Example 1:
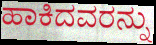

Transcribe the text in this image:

ಹಾಕಿದವರನ್ನು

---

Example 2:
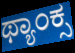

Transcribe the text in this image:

ಥ್ಯಾಂಕ್ಸ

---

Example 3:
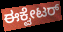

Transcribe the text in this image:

ಈಕ್ವೇಟರ್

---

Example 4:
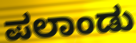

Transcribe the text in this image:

ಪಲಾಂಡು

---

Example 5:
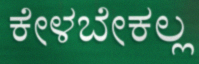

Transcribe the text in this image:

ಕೇಳಬೇಕಲ್ಲ